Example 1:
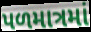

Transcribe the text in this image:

પળમાત્રમાં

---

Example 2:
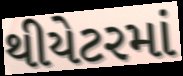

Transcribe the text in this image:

થીયેટરમાં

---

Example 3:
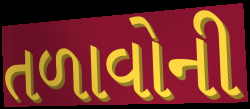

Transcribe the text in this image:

તળાવોની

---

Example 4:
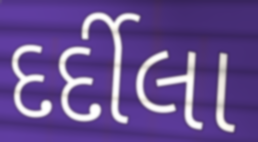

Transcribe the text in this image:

દર્દીલા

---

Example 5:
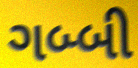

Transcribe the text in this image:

ગબ્બી